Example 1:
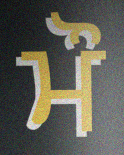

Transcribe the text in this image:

ਮੌ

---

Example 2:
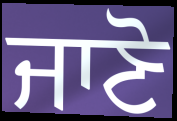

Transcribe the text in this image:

ਜਾਣੋ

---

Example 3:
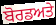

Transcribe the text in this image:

ਬੋਰਡਅਤੇ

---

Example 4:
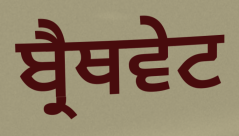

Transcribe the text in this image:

ਬ੍ਰੈਥਵੇਟ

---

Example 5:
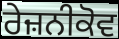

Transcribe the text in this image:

ਰੇਜ਼ਨੀਕੋਵ